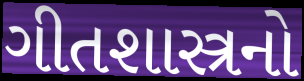
ગીતશાસ્ત્રનો